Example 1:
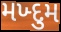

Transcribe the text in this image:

મખ્દુમ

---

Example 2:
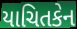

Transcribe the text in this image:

યાચિતકેન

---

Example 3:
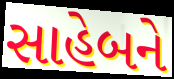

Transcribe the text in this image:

સાહેબને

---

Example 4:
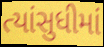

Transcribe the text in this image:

ત્યાંસુધીમાં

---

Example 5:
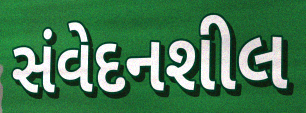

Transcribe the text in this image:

સંવેદનશીલ